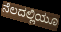
ನೆಲದಲ್ಲಿಯೂ